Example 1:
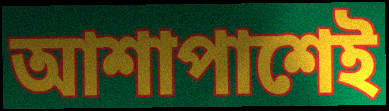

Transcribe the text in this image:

আশাপাশেই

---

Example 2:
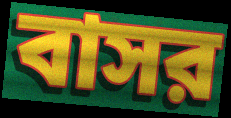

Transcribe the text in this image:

বাসর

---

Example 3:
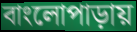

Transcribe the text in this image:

বাংলোপাড়ায়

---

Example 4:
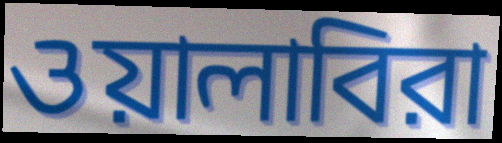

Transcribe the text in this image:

ওয়ালাবিরা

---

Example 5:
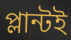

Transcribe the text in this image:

প্লান্টই